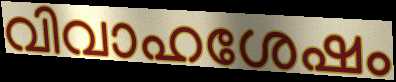
വിവാഹശേഷം